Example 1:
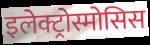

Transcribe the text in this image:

इलेक्ट्रोस्मोसिस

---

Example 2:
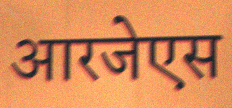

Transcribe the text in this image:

आरजेएस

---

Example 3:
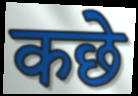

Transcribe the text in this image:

कछे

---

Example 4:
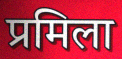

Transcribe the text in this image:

प्रमिला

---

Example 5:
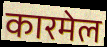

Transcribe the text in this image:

कारमेल